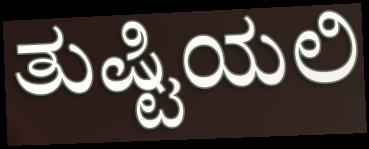
ತುಷ್ಟಿಯಲಿ